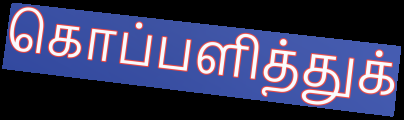
கொப்பளித்துக்